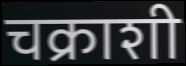
चक्राशी